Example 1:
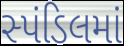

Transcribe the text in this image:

સ્પંડિલમાં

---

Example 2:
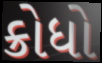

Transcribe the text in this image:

ક્રોધો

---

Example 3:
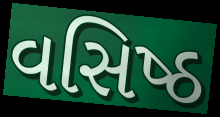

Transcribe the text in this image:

વસિષ્‍ઠ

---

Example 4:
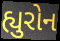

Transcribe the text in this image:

હ્યુરોન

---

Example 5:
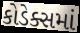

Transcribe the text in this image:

કોડેક્સમાં